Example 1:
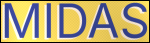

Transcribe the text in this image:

MIDAS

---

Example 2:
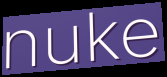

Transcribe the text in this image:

nuke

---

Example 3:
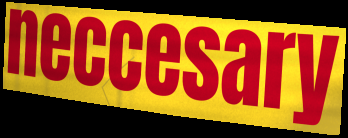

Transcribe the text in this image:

neccesary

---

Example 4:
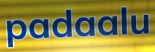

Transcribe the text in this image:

padaalu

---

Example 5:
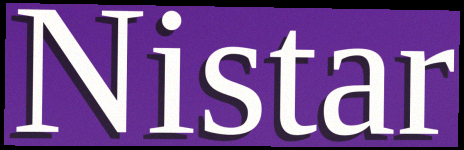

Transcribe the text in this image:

Nistar